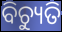
ବିଚ୍ୟୁତି